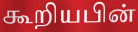
கூறியபின்